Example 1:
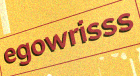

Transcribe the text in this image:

egowrisss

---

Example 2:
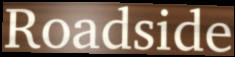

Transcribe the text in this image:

Roadside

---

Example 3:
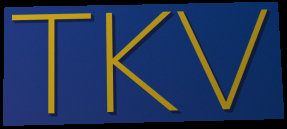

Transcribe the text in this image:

TKV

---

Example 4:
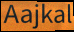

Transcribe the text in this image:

Aajkal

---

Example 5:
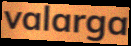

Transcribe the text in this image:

valarga